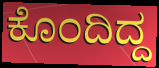
ಕೊಂದಿದ್ದ